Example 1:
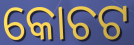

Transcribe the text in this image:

କୋଚଟ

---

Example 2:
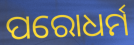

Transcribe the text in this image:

ପରୋଧର୍ମ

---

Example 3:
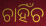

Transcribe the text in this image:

ଚାହିଁଚ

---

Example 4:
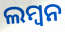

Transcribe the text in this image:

ଲମ୍ବନ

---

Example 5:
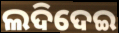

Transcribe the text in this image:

ଲଦିଦେଇ